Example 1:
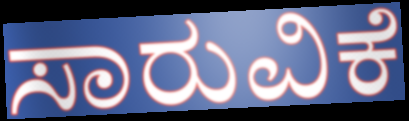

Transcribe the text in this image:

ಸಾರುವಿಕೆ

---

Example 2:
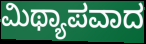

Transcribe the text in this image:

ಮಿಥ್ಯಾಪವಾದ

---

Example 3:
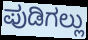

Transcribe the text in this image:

ಪುಡಿಗಲ್ಲು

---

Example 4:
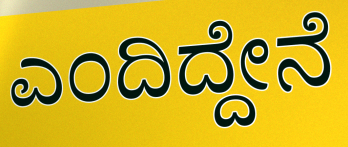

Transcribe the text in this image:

ಎಂದಿದ್ದೇನೆ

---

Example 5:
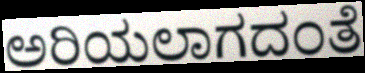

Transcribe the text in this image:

ಅರಿಯಲಾಗದಂತೆ